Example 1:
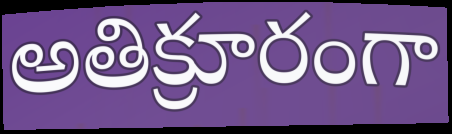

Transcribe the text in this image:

అతిక్రూరంగా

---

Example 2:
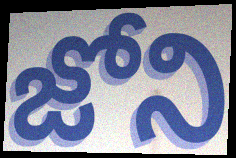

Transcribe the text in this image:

జోని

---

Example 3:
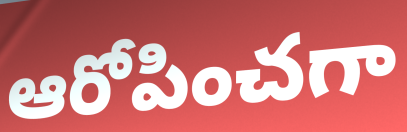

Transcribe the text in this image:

ఆరోపించగా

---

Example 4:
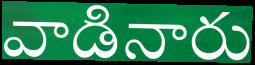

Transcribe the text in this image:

వాడినారు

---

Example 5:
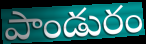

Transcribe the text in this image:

పాండురం